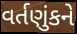
વર્તણુંકને